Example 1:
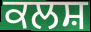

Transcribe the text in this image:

ਕਲਸ਼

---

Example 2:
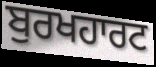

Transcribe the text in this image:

ਬੁਰਖਹਾਰਟ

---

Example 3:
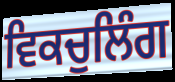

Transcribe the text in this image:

ਵਿਕਚੁਲਿੰਗ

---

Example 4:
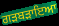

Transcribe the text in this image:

ਗੜਬੜਾਇਆ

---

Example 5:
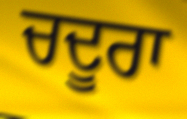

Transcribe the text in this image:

ਚਦੂਰਾ